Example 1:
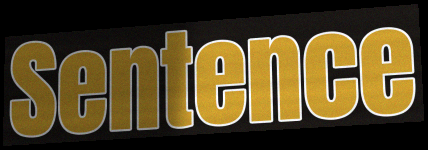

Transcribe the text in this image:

Sentence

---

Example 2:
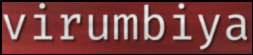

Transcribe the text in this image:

virumbiya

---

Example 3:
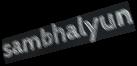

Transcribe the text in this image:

sambhalyun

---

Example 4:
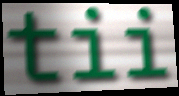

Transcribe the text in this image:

tii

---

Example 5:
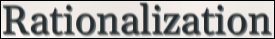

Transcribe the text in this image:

Rationalization